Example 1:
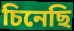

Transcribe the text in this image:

চিনেছি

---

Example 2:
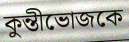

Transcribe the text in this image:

কুন্তীভোজকে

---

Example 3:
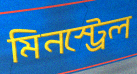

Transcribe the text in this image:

মিনস্ট্রেল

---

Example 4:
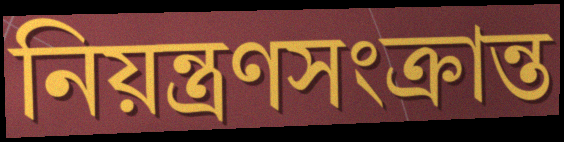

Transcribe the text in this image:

নিয়ন্ত্রণসংক্রান্ত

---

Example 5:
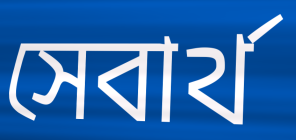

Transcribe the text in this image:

সেবার্থ